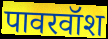
पावरवॉश